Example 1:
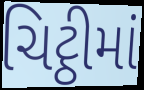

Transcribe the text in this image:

ચિટ્ઠીમાં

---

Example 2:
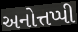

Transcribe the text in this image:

અનોત્તપ્પી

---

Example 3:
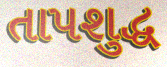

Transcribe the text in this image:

તાપશુદ્ધ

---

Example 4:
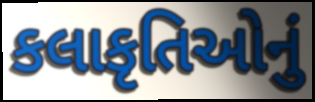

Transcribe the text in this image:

કલાકૃતિઓનું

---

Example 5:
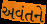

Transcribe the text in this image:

અવંતને